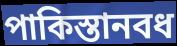
পাকিস্তানবধ